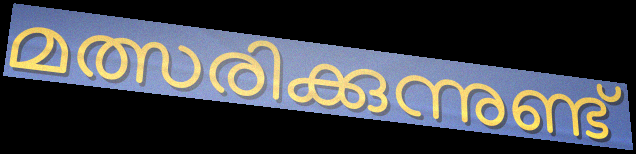
മത്സരിക്കുന്നുണ്ട്